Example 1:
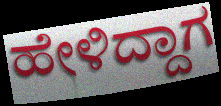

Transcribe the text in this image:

ಹೇಳಿದ್ದಾಗ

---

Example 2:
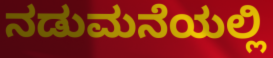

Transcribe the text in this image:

ನಡುಮನೆಯಲ್ಲಿ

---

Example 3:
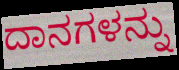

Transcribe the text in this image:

ದಾನಗಳನ್ನು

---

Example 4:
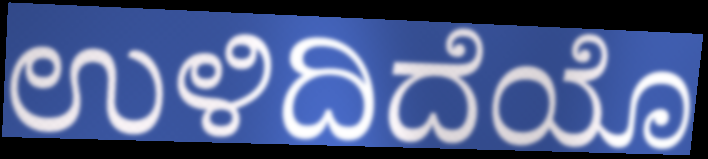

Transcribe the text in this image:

ಉಳಿದಿದೆಯೊ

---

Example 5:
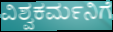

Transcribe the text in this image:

ವಿಶ್ವಕರ್ಮನಿಗೆ